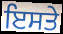
ਇਸਤੇ